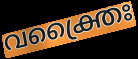
വക്ത്രൈഃ